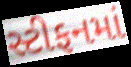
સ્ટીફનમાં